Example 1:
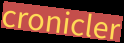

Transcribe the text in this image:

cronicler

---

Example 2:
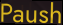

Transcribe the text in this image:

Paush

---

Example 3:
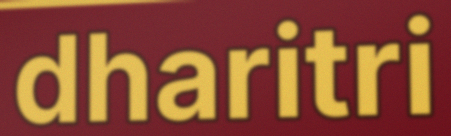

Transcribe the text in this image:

dharitri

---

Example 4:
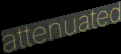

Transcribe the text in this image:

attenuated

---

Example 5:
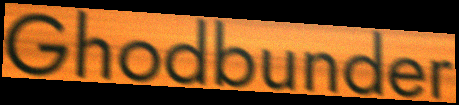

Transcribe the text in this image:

Ghodbunder